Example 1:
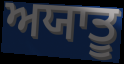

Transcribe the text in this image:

ਅਯਾਤੂ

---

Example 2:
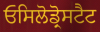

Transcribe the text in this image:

ਓਸਿਲੋਡ੍ਰੋਸਟੈਟ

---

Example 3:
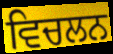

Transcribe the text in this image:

ਵਿਚਲਨ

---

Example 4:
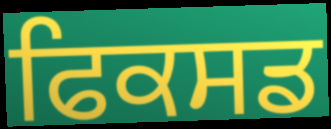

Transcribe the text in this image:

ਫਿਕਸਡ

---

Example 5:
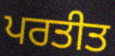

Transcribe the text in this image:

ਪਰਤੀਤ